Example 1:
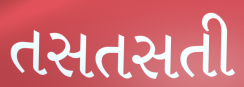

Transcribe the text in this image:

તસતસતી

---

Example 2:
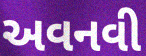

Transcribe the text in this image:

અવનવી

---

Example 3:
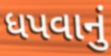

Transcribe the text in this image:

ધપવાનું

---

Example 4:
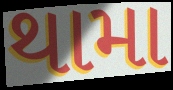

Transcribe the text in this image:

થામા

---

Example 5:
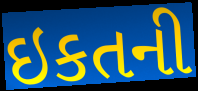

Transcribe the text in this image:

ઇકતની